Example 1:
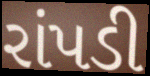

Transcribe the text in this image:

રાંપડી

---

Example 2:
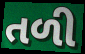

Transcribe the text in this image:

તળી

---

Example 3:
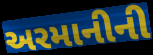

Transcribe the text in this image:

અરમાનીની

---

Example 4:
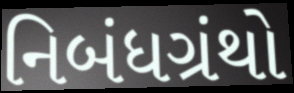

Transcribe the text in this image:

નિબંધગ્રંથો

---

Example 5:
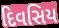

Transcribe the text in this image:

દિવસિય